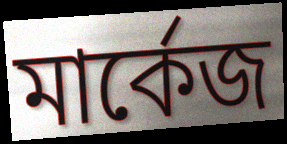
মার্কেজ